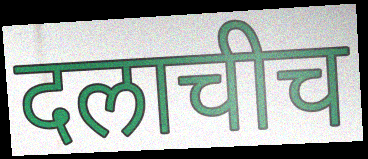
दलाचीच